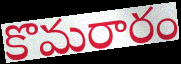
కొమరారం